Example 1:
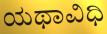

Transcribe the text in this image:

ಯಥಾವಿಧಿ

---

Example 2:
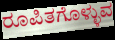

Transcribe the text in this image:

ರೂಪಿತಗೊಳ್ಳುವ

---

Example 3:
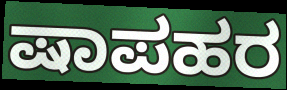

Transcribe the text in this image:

ಷಾಪಹರ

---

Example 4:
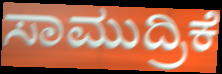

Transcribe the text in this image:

ಸಾಮುದ್ರಿಕೆ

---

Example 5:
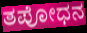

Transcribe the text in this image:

ತಪೋಧನ